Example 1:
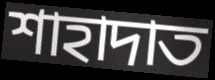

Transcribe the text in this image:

শাহাদাত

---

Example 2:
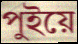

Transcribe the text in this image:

পুইয়ে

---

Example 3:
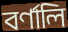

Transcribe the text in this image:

বর্ণালি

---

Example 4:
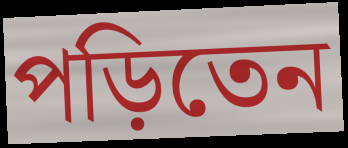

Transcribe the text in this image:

পড়িতেন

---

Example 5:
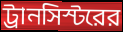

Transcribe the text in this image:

ট্রানসিস্টরের